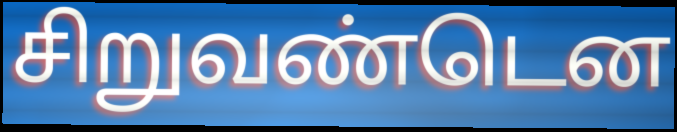
சிறுவண்டென